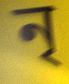
নৃ